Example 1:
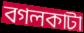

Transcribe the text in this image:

বগলকাটা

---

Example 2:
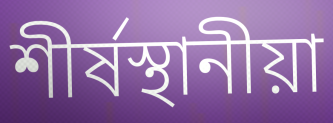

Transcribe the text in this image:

শীর্ষস্থানীয়া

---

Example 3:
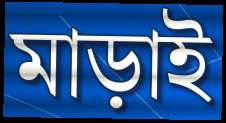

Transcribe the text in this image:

মাড়াই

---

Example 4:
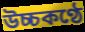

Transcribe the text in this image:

উচ্চকণ্ঠে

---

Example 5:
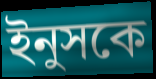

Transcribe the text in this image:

ইনুসকে